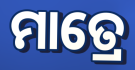
ମାତ୍ରେ